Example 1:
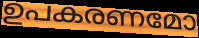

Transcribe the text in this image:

ഉപകരണമോ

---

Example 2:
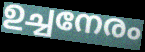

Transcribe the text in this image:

ഉച്ചനേരം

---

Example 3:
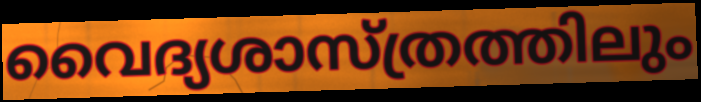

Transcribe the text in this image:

വൈദ്യശാസ്ത്രത്തിലും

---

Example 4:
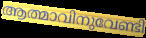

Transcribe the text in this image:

ആത്മാവിനുവേണ്ടി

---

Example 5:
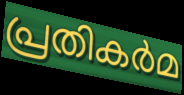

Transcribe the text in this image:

പ്രതികർമ